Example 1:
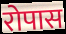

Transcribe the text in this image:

रोपास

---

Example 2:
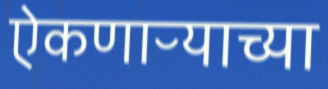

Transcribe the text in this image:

ऐकणाऱ्याच्या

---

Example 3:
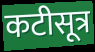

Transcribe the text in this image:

कटीसूत्र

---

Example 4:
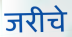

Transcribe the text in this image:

जरीचे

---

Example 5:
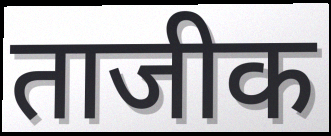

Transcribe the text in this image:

ताजीक